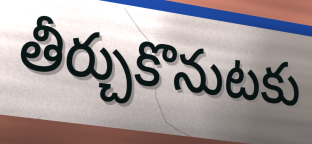
తీర్చుకొనుటకు